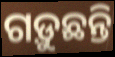
ଗଡ଼ୁଛନ୍ତି